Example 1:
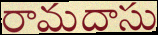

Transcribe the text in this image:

రామదాసు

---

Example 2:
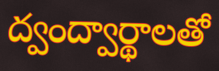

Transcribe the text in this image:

ద్వంద్వార్థాలతో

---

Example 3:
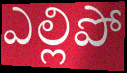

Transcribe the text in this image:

ఎల్లిపో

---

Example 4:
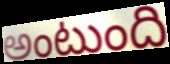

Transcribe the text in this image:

అంటుంది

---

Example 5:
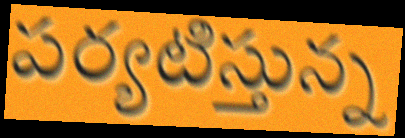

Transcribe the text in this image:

పర్యటిస్తున్న